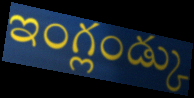
ఇంగ్లండ్కు